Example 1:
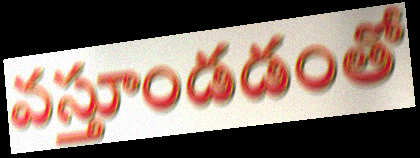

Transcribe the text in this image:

వస్తూండడంతో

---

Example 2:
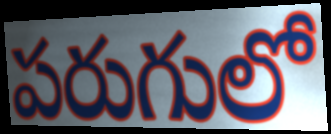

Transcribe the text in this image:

పరుగులో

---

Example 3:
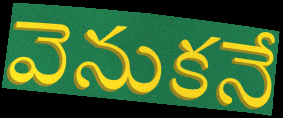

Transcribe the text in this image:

వెనుకనే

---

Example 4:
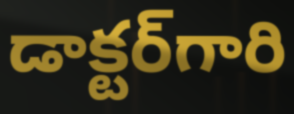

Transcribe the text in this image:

డాక్టర్‌గారి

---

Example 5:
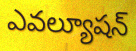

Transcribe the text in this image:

ఎవల్యూషన్